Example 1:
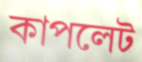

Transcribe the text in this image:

কাপলেট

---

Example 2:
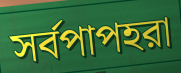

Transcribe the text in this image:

সর্বপাপহরা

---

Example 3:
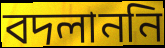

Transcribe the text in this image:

বদলাননি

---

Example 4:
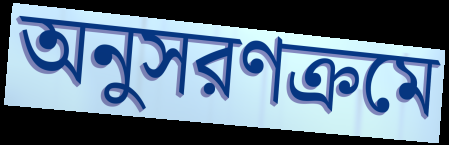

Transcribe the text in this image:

অনুসরণক্রমে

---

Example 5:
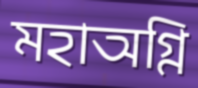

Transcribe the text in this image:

মহাঅগ্নি